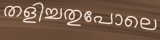
തളിച്ചതുപോലെ